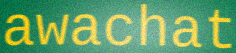
awachat